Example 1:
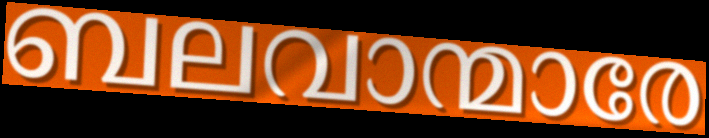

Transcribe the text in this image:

ബലവാന്മാരേ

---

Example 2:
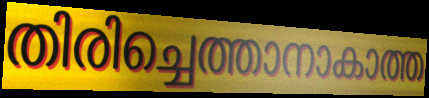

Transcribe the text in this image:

തിരിച്ചെത്താനാകാത്ത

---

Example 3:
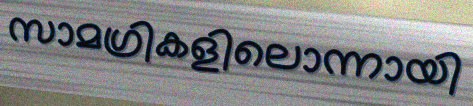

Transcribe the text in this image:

സാമഗ്രികളിലൊന്നായി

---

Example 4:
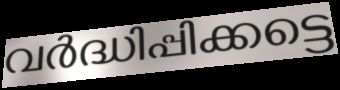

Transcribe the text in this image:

വർദ്ധിപ്പിക്കട്ടെ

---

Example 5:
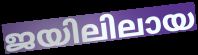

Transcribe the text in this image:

ജയിലിലായ